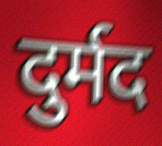
दुर्मद